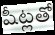
షీట్లతో